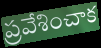
ప్రవేశించాక